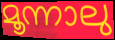
മൂന്നാലു